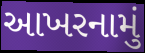
આખરનામું